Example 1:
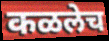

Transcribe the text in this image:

कळलेच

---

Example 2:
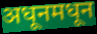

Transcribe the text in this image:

अधूनमधून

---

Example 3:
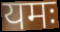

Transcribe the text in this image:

यमः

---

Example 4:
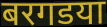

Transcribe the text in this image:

बरगडया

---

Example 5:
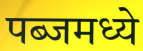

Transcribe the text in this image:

पब्जमध्ये